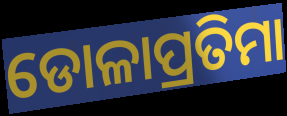
ଡୋଳାପ୍ରତିମା